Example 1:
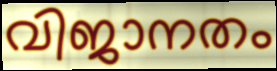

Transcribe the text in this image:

വിജാനതം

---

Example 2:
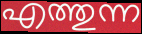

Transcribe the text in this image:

എത്തുന്ന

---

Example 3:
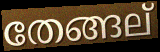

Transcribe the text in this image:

തേങ്ങല്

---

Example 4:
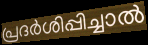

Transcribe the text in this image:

പ്രദർശിപ്പിച്ചാൽ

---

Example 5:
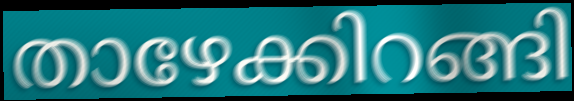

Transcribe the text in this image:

താഴേക്കിറങ്ങി